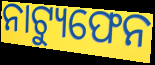
ନାଟ୍ୟୁଫେନ